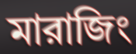
মারাজিং